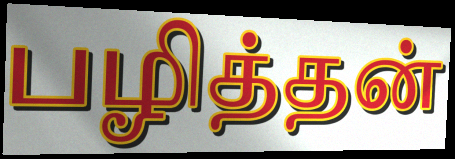
பழித்தன்